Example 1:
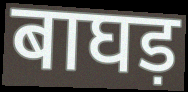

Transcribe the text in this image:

बाघड़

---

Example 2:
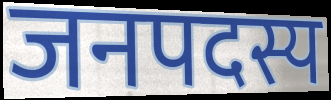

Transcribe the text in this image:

जनपदस्य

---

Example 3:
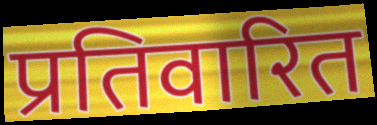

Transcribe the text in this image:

प्रतिवारित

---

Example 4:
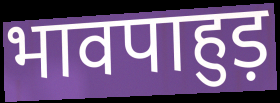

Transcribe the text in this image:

भावपाहुड़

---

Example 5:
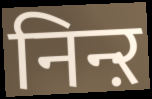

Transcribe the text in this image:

निन्ऱ